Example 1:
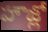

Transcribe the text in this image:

హౌజ్లో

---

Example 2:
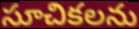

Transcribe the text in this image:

సూచికలను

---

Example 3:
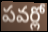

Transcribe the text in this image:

పవర్లో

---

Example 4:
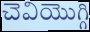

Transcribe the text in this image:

చెవియొగ్గి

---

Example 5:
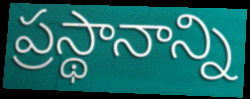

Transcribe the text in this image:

ప్రస్థానాన్ని